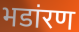
भडांरण